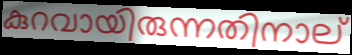
കുറവായിരുന്നതിനാല്